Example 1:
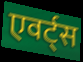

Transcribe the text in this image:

एवर्ट्स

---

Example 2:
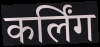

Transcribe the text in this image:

कर्लिंग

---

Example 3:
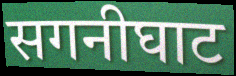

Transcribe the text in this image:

सगनीघाट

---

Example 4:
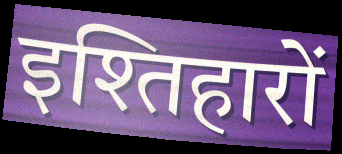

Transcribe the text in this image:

इश्तिहारों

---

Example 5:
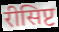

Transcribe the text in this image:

रीसिप्ट